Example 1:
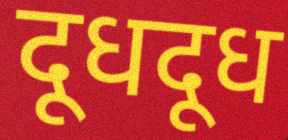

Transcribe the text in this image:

दूधदूध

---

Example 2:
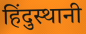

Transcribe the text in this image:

हिंदुस्थानी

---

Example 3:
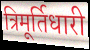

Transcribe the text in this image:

त्रिमूर्तिधारी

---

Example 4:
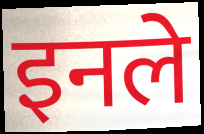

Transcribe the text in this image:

इनले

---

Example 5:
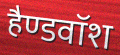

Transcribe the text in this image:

हैण्डवॉश